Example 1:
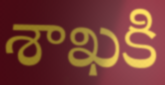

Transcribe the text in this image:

శాఖకి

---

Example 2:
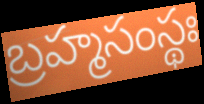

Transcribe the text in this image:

బ్రహ్మసంస్థః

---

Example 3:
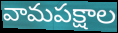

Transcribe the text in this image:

వామపక్షాల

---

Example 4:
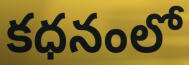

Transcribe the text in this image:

కధనంలో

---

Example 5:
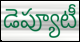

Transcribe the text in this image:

డెప్యూటీ